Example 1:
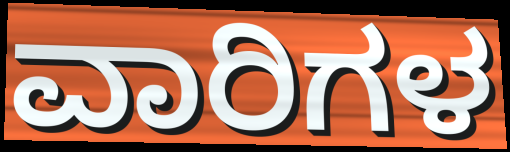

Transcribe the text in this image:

ವಾರಿಗಳ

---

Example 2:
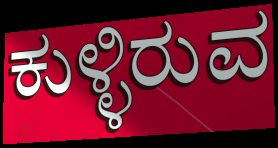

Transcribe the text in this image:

ಕುಳ್ಳಿರುವ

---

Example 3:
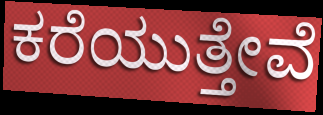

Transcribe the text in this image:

ಕರೆಯುತ್ತೇವೆ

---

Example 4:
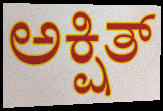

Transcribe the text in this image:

ಅಕ್ಷಿತ್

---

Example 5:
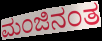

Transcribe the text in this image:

ಮಂಜಿನಂತ